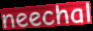
neechal